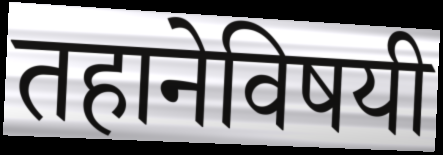
तहानेविषयी